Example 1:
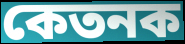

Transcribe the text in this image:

কেতনক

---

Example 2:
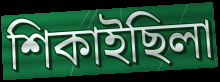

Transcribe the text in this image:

শিকাইছিলা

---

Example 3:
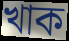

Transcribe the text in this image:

খাক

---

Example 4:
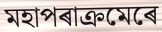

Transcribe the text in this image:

মহাপৰাক্ৰমেৰে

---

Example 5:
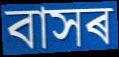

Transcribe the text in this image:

বাসৰ